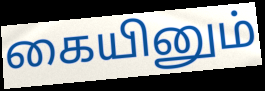
கையினும்